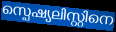
സ്പെഷ്യലിസ്റ്റിനെ